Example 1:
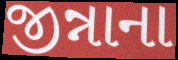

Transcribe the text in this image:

જીન્નાના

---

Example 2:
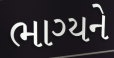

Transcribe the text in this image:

ભાગ્યને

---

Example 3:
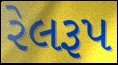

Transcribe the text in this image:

રેલરૂપ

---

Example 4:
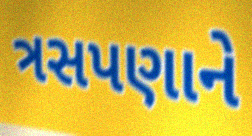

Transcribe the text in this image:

ત્રસપણાને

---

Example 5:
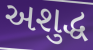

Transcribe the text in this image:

અશુદ્ધ